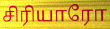
சிரியாரோ